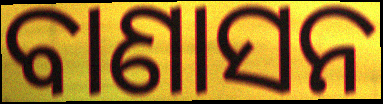
ବାଣାସନ